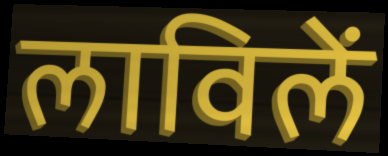
लाविलें